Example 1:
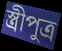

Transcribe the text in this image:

স্ত্রীপুত্র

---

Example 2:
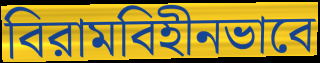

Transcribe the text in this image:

বিরামবিহীনভাবে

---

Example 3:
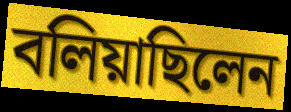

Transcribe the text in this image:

বলিয়াছিলেন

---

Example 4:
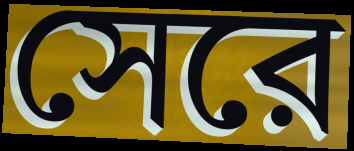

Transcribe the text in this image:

সেরে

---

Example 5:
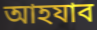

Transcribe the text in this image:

আহযাব